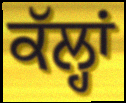
ਕੱਲ੍ਹਾਂ